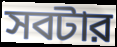
সবটার